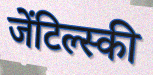
जेंटिल्स्की